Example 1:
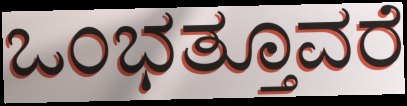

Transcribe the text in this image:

ಒಂಭತ್ತೂವರೆ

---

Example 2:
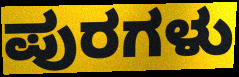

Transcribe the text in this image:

ಪುರಗಳು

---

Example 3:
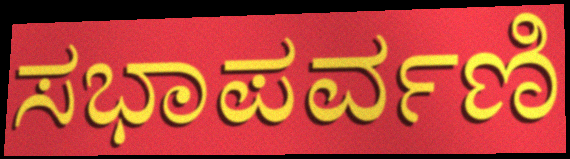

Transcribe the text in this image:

ಸಭಾಪರ್ವಣಿ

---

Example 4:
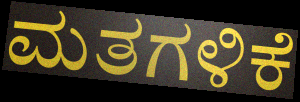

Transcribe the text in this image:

ಮತಗಳಿಕೆ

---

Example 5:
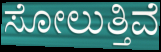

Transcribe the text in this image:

ಸೋಲುತ್ತಿವೆ